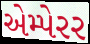
એમ્પેરર